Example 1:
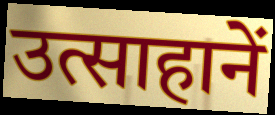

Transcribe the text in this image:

उत्साहानें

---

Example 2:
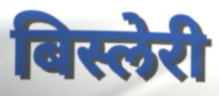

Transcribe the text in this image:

बिस्लेरी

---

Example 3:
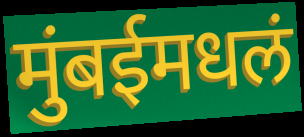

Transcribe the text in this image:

मुंबईमधलं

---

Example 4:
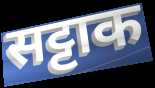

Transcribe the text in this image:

सट्टाक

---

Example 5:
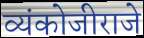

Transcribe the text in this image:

व्यंकोजीराजे